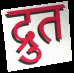
द्रुत